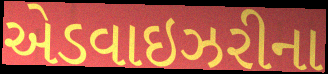
એડવાઇઝરીના